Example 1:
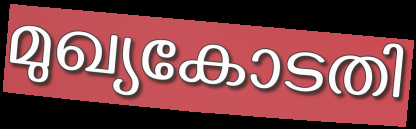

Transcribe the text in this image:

മുഖ്യകോടതി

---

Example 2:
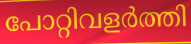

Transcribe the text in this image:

പോറ്റിവളർത്തി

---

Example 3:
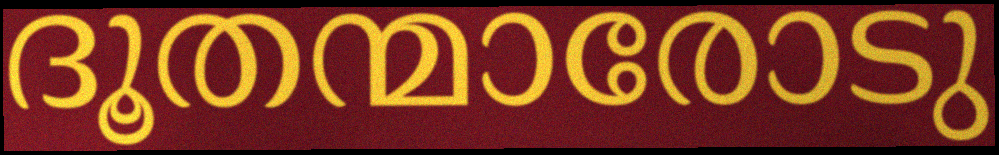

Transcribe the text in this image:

ദൂതന്മാരോടു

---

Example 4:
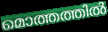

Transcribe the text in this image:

മൊത്തത്തിൽ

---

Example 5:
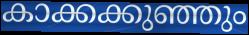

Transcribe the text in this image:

കാക്കക്കുഞ്ഞും